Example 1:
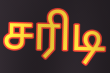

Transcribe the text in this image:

சரிடி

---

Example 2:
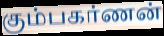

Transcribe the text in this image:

கும்பகர்ணன்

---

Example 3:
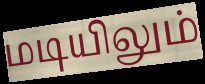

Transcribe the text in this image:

மடியிலும்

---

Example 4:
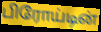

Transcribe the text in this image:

பிரோய்டின்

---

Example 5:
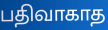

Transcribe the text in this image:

பதிவாகாத